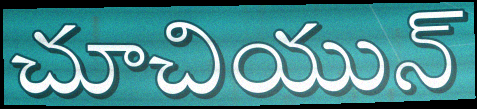
చూచియున్